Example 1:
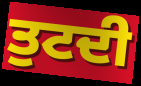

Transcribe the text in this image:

ਤੁਟਦੀ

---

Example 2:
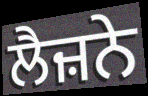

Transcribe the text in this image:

ਲੈਜ਼ਨੇ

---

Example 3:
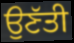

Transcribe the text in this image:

ਉਣੱਤੀ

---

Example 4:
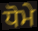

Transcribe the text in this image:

ਧੋਮੇ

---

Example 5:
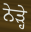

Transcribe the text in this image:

ਨੇੜ੍ਹੇ